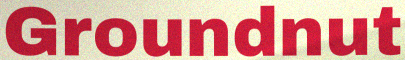
Groundnut